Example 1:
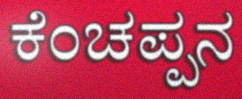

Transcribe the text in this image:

ಕೆಂಚಪ್ಪನ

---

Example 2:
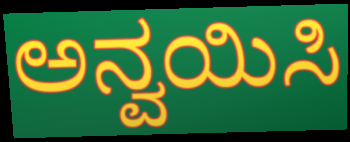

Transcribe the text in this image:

ಅನ್ವಯಿಸಿ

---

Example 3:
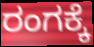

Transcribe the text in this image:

ರಂಗಕ್ಕೆ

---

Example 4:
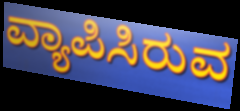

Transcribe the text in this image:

ವ್ಯಾಪಿಸಿರುವ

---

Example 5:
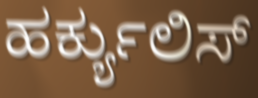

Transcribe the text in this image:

ಹರ್ಕ್ಯುಲಿಸ್